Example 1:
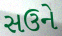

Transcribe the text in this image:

સઉને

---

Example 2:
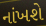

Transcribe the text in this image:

નાંખશે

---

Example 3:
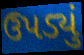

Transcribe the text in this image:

ઉપડ્યું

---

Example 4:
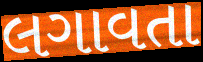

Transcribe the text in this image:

લગાવતા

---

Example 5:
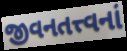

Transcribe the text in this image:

જીવનતત્ત્વનાં